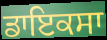
ਡਾਇਕਸਾ